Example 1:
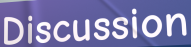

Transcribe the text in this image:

Discussion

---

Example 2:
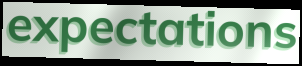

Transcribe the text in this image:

expectations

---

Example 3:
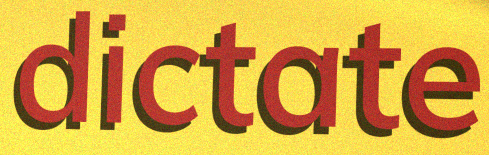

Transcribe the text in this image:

dictate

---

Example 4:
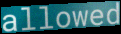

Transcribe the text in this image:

allowed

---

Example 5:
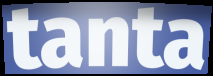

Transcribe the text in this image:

tanta